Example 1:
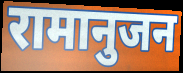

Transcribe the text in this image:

रामानुजन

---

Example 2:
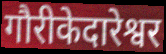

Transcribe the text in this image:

गौरीकेदारेश्वर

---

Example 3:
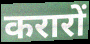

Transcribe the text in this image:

करारों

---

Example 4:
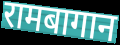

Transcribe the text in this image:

रामबागान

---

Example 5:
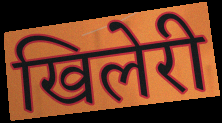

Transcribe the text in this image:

खिलेरी